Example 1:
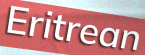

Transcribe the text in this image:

Eritrean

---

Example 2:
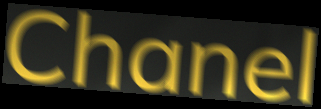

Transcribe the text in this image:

Chanel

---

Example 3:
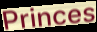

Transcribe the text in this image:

Princes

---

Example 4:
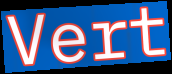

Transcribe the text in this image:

Vert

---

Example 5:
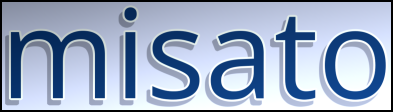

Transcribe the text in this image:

misato